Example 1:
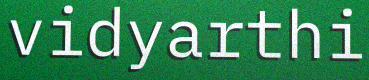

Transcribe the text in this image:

vidyarthi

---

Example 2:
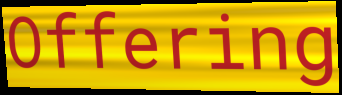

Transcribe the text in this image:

Offering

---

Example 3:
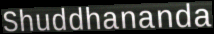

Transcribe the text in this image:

Shuddhananda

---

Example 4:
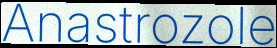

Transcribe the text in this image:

Anastrozole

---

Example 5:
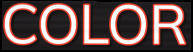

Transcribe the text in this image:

COLOR